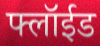
फ्लॉईड